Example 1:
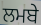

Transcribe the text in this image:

ਲਮਬੇ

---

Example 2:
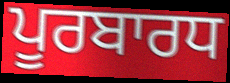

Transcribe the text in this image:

ਪੂਰਬਾਰਧ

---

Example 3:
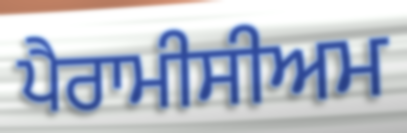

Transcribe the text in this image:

ਪੈਰਾਮੀਸੀਅਮ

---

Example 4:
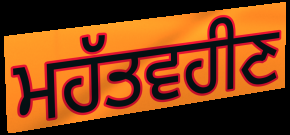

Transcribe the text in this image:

ਮਹੱਤਵਹੀਣ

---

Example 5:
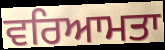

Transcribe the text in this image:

ਵਰਿਆਮਤਾ